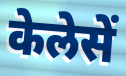
केलेसें